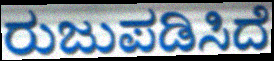
ರುಜುಪಡಿಸಿದೆ